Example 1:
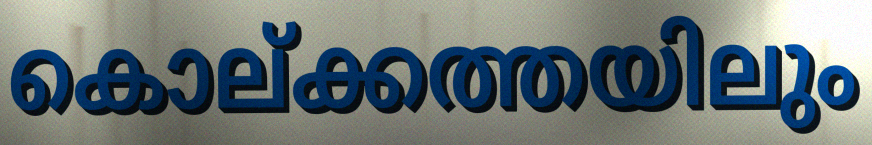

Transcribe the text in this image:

കൊല്ക്കത്തയിലും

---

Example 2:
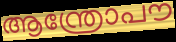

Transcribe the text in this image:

ആന്ത്രോപൗ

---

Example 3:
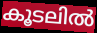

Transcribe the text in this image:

കൂടലിൽ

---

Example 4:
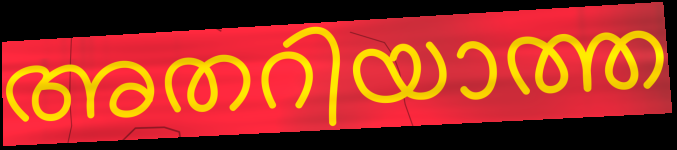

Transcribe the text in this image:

അതറിയാത്ത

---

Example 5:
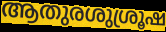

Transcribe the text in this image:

ആതുരശുശ്രൂഷ